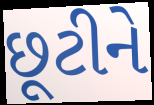
છૂટીને